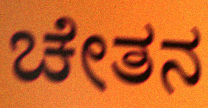
ಚೇತನ